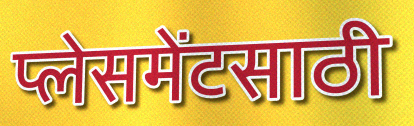
प्लेसमेंटसाठी